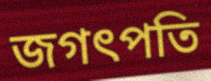
জগৎপতি